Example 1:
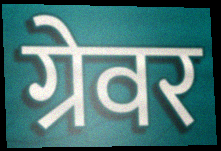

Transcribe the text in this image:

ग्रेवर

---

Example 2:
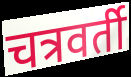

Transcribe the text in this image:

चत्रवर्ती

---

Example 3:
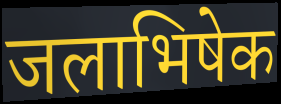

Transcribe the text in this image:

जलाभिषेक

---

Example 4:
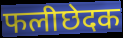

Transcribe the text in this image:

फलीछेदक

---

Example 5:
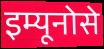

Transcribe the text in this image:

इम्यूनोसे